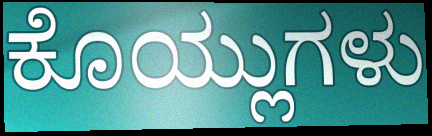
ಕೊಯ್ಲುಗಳು